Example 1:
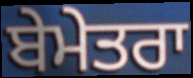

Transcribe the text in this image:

ਬੇਮੇਤਰਾ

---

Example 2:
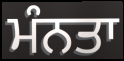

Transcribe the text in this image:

ਮੰਨਤਾ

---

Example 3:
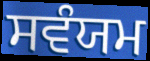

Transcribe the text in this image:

ਸਵੰਯਮ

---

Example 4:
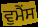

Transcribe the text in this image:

ਵੁਮੈਂਸ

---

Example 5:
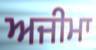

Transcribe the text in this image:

ਅਜੀਮਾ